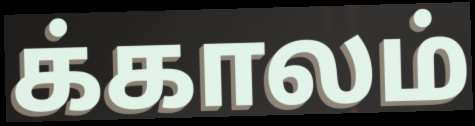
க்காலம்